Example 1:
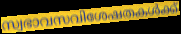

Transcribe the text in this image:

സ്വഭാവസവിശേഷതകൾക്ക്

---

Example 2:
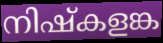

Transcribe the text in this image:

നിഷ്കളങ്ക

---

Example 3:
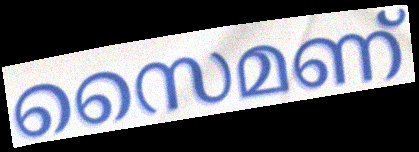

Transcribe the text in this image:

സൈമണ്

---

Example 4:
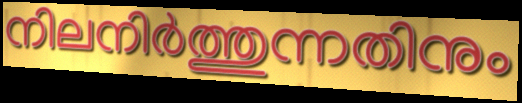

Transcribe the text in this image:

നിലനിർത്തുന്നതിനും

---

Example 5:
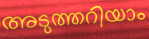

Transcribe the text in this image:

അടുത്തറിയാം